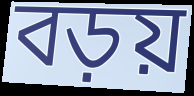
বড়য়